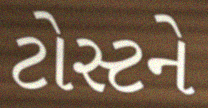
ટોસ્ટને